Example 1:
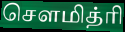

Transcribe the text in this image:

சௌமித்ரி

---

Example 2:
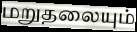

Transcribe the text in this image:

மறுதலையும்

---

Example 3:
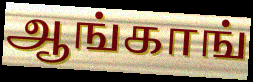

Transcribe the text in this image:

ஆங்காங்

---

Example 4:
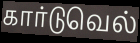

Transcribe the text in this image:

கார்டுவெல்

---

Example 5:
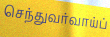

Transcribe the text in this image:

செந்துவர்வாய்ப்